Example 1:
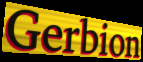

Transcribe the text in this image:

Gerbion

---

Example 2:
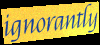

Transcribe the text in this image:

ignorantly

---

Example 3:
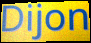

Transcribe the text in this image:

Dijon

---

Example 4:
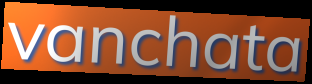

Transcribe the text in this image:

vanchata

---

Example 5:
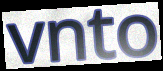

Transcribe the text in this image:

vnto